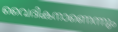
വൈദികനാണെന്നും